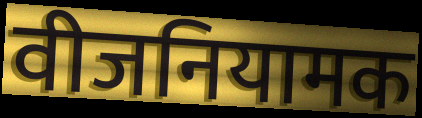
वीजनियामक